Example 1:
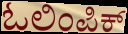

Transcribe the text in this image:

ಓಲಿಂಪಿಕ್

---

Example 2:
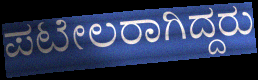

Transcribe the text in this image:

ಪಟೇಲರಾಗಿದ್ದರು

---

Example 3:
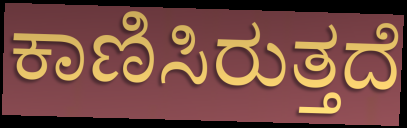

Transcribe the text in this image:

ಕಾಣಿಸಿರುತ್ತದೆ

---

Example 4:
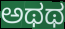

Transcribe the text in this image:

ಅಥಥ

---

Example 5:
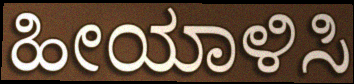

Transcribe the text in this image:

ಹೀಯಾಳಿಸಿ